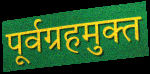
पूर्वग्रहमुक्त